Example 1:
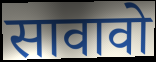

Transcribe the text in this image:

सावावो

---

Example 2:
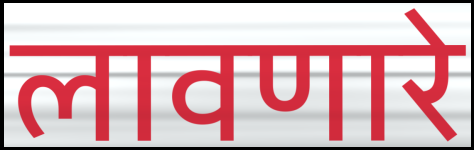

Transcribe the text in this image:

लावणारे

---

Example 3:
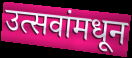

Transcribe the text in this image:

उत्सवांमधून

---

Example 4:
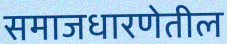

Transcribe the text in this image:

समाजधारणेतील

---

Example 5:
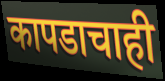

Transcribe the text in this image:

कापडाचाही